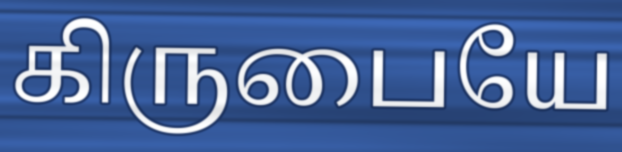
கிருபையே